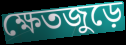
ক্ষেতজুড়ে